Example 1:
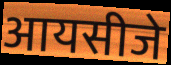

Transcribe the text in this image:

आयसीजे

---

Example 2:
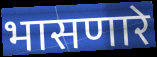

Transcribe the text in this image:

भासणारे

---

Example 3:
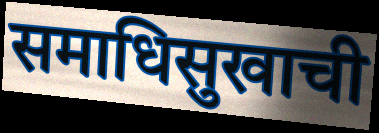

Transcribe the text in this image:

समाधिसुखाची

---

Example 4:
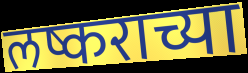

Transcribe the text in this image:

लष्कराच्या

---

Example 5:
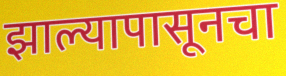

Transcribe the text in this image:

झाल्यापासूनचा